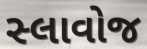
સ્લાવોજ